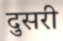
दुसरी